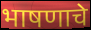
भाषणाचे